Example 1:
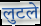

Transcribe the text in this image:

लुटले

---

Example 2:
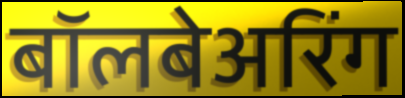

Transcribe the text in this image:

बॉलबेअरिंग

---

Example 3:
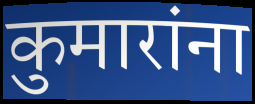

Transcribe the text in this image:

कुमारांना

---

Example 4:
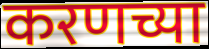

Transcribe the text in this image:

करणच्या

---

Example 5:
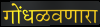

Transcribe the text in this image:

गोंधळवणारा